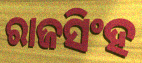
ରାଜସିଂହ